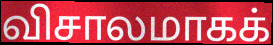
விசாலமாகக்